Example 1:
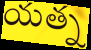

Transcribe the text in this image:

యత్న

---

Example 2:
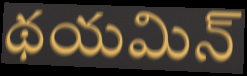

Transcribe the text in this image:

థయమిన్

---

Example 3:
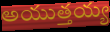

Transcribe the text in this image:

అయుత్తయ్య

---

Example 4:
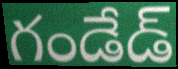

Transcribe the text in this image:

గండేడ్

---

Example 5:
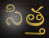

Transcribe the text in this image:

సిత్త